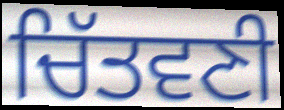
ਚਿੱਤਵਣੀ